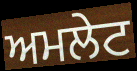
ਅਮਲੇਟ